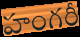
హంగరీ